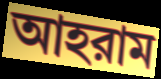
আহরাম